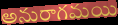
అనురాగమయి